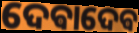
ଦେଵାଦେଵ